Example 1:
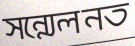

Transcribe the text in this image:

সন্মেলনত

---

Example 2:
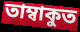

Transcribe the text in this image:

তাম্বাকুত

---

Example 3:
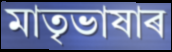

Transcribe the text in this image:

মাতৃভাষাৰ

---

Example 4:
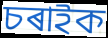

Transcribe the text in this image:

চৰাইক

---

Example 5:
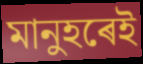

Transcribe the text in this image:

মানুহৰেই